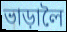
ভাড়ালৈ